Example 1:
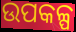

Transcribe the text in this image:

ଉପକଳ୍ପ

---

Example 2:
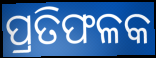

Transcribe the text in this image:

ପ୍ରତିଫଳକ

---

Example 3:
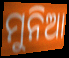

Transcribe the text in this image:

ମୁନିଆ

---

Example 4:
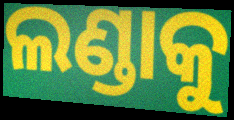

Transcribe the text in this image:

ଲଣ୍ଡାକୁ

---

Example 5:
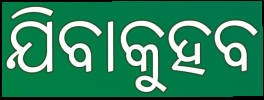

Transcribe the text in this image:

ଯିବାକୁହବ